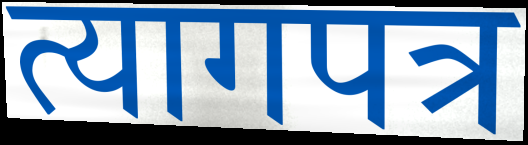
त्यागपत्र